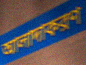
আলাদাকরণ